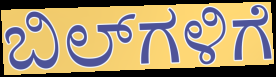
ಬಿಲ್‌ಗಳಿಗೆ